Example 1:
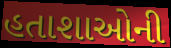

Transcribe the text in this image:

હતાશાઓની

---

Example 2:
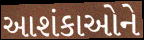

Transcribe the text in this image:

આશંકાઓને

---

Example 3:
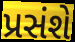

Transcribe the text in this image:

પ્રસંશે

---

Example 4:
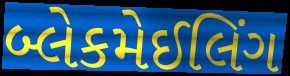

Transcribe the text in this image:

બ્લેકમેઈલિંગ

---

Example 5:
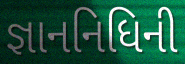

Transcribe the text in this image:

જ્ઞાનનિધિની